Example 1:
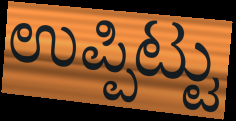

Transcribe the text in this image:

ಉಪ್ಪಿಟ್ಟು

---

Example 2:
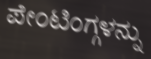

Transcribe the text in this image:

ಪೇಂಟಿಂಗ್ಗಳನ್ನು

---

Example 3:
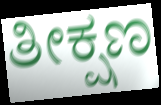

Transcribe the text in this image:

ತೀಕ್ಷಣ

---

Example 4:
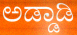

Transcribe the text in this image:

ಅಡ್ಡಾಡಿ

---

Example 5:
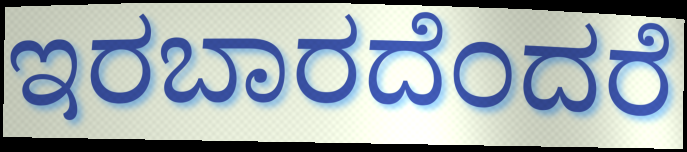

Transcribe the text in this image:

ಇರಬಾರದೆಂದರೆ